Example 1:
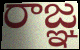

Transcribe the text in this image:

రాజ్ఞ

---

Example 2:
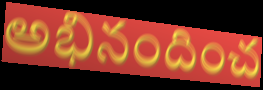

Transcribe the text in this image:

అభినందించ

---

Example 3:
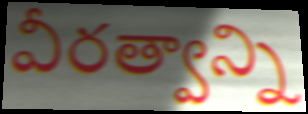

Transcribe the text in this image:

వీరత్వాన్ని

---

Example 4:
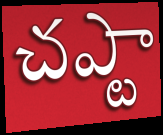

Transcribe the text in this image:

చఎ్టా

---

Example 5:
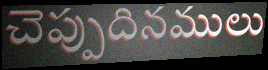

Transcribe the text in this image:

చెప్పుదినములు